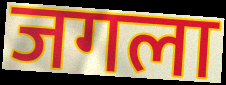
जगला